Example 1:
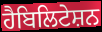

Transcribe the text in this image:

ਹੈਬਿਲਿਟੇਸ਼ਨ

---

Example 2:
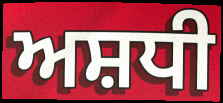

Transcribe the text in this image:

ਅਸ਼ਧੀ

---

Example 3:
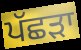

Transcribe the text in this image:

ਪੱਛੜਾ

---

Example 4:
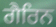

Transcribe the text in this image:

ਗੈਰਿਨ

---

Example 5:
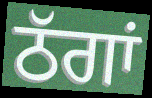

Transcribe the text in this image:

ਠੱਗਾਂ